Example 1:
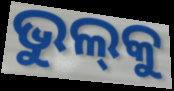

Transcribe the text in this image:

ଭୁଲ୍‍କୁ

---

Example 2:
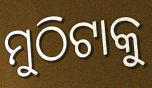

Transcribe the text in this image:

ମୁଠିଟାକୁ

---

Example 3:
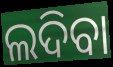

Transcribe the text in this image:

ଲଦିବା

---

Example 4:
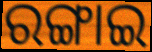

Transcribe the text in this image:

ରଙ୍ଗାଇ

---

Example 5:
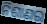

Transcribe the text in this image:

ନିଶାଣର